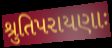
શ્રુતિપરાયણાઃ